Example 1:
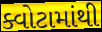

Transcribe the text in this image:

ક્વોટામાંથી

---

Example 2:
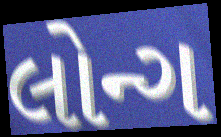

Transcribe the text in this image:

લોન્ગ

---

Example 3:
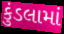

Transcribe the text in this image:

કુંડલામાં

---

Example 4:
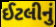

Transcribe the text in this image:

ઈટલીનું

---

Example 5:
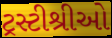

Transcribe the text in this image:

ટ્રસ્ટીશ્રીઓ